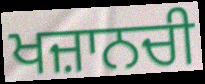
ਖਜ਼ਾਨਚੀ